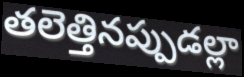
తలెత్తినప్పుడల్లా